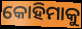
କୋହିମାକୁ